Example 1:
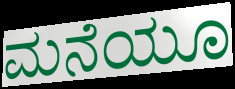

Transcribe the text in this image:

ಮನೆಯೂ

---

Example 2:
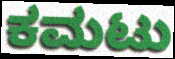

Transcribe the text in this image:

ಕಮಟು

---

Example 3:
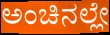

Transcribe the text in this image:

ಅಂಚಿನಲ್ಲೇ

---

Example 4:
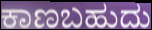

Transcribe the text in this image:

ಕಾಣಬಹುದು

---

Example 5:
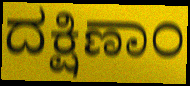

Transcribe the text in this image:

ದಕ್ಷಿಣಾಂ